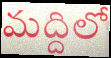
మద్దిలో